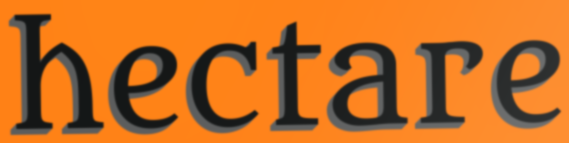
hectare